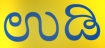
ಉಡಿ